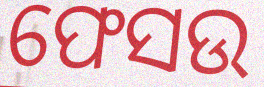
ଫେସଉ